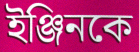
ইঞ্জিনকে